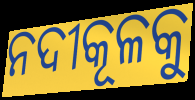
ନଦୀକୂଳକୁ